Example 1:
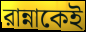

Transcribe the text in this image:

রান্নাকেই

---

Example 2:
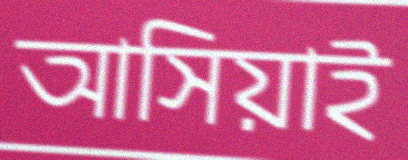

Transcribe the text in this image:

আসিয়াই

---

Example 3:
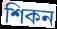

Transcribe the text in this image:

শিকন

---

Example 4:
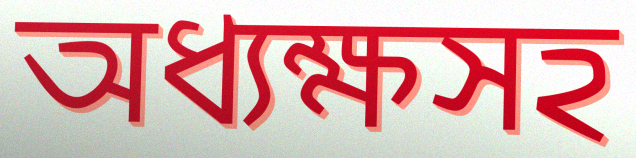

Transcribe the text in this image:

অধ্যক্ষসহ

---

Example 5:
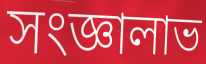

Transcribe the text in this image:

সংজ্ঞালাভ